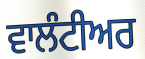
ਵਾਲੰਟੀਅਰ